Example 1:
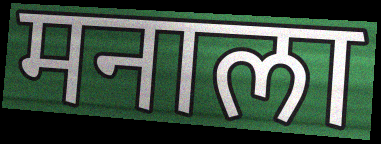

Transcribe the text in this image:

मनाला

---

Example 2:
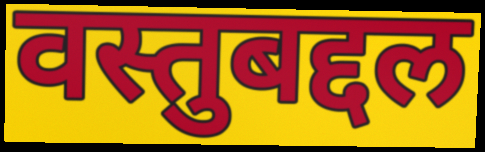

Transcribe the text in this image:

वस्तुबद्दल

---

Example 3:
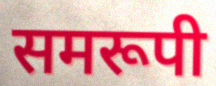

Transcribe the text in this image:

समरूपी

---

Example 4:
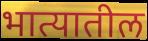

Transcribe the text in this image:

भात्यातील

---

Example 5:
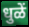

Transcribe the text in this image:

धुळें